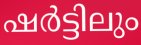
ഷർട്ടിലും